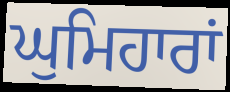
ਘੁਮਿਹਾਰਾਂ